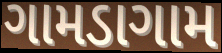
ગામડાગામ